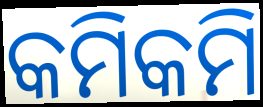
କମିକମି